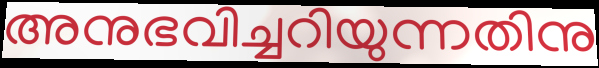
അനുഭവിച്ചറിയുന്നതിനു